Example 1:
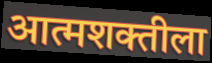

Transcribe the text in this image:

आत्मशक्तीला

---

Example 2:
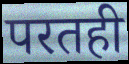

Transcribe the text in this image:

परतही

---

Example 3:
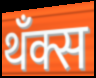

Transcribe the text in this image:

थँक्स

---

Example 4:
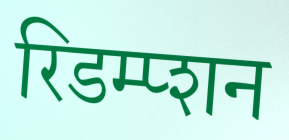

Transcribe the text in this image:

रिडम्प्शन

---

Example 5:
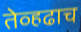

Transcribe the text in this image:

तेव्हढाच